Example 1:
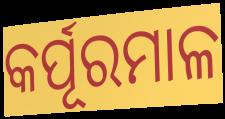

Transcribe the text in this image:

କର୍ପୂରମାଳ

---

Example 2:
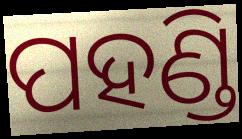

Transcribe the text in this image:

ପହଣ୍ଡି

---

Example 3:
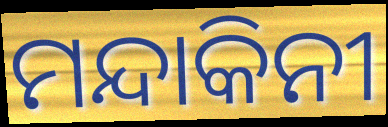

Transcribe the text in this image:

ମନ୍ଦାକିନୀ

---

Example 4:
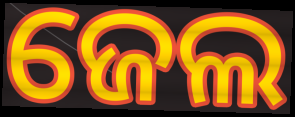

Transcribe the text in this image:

ଜେଲ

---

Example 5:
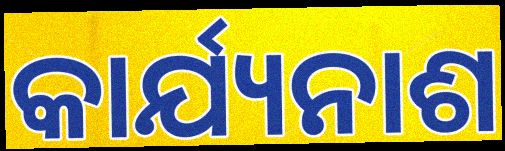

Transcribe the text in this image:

କାର୍ଯ୍ୟନାଶ